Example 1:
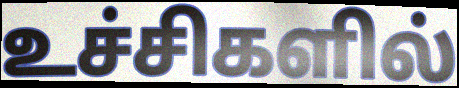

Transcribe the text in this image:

உச்சிகளில்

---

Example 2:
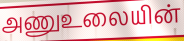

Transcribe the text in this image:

அணுஉலையின்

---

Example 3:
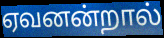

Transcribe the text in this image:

ஏவனன்றால்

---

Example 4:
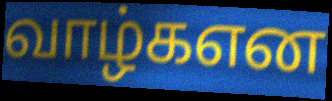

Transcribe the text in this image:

வாழ்கஎன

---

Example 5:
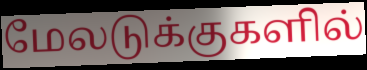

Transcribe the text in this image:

மேலடுக்குகளில்